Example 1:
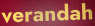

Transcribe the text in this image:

verandah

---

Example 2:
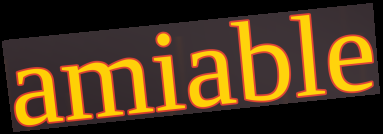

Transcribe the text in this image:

amiable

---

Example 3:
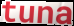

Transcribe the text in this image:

tuna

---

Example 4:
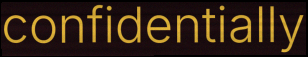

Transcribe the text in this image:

confidentially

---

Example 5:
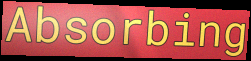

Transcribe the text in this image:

Absorbing